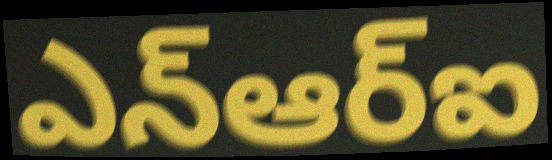
ఎన్ఆర్ఐ